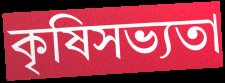
কৃষিসভ্যতা